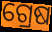
ଗ୍ରେଷ